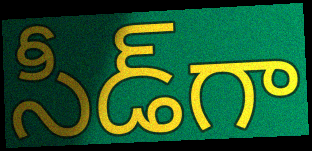
సీడ్‌గా